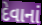
દેવાનાં